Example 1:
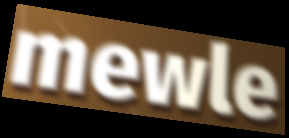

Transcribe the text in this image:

mewle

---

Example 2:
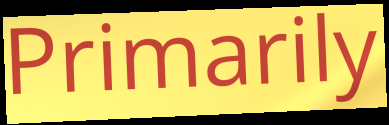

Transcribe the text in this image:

Primarily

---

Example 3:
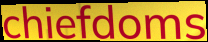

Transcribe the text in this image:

chiefdoms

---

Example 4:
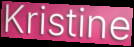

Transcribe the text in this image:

Kristine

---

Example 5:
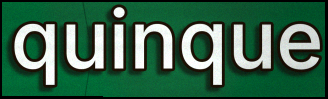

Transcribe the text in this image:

quinque